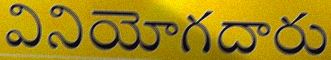
వినియోగదారు